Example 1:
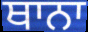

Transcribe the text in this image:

ਥਾਨਾ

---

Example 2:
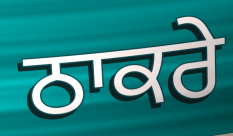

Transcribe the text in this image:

ਠਾਕਰੇ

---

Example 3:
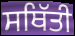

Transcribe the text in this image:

ਸਥਿੱਤੀ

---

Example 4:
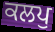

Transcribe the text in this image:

ਕਲਪੁ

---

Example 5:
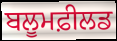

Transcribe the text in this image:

ਬਲੂਮਫ਼ੀਲਡ